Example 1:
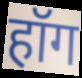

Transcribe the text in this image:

हॉग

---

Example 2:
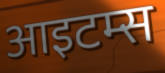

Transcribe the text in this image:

आइटम्स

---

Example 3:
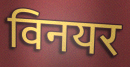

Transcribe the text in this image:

विनयर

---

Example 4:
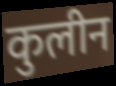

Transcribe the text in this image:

कुलीन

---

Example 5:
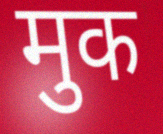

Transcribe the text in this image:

मुक